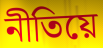
নীতিয়ে